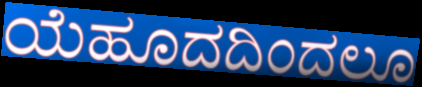
ಯೆಹೂದದಿಂದಲೂ